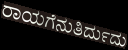
ರಾಯಗೆನುತಿರ್ದುದು